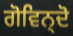
ਗੋਵਿਨ੍ਦੋ